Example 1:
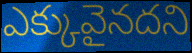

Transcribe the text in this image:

ఎక్కువైనదని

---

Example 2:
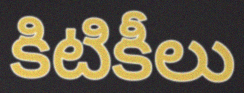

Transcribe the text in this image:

కిటికీలు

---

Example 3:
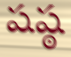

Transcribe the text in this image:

షష్ఠ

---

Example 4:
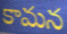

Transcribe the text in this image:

కామన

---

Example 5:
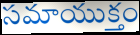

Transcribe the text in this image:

సమాయుక్తం